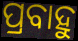
ପ୍ରବାହୁ